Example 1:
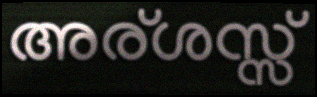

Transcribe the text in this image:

അര്ശസ്സ്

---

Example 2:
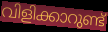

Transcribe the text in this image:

വിളിക്കാറുണ്ട്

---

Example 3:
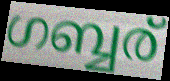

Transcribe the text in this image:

ഗബ്ബര്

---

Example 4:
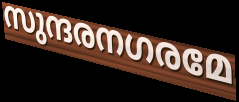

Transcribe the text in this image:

സുന്ദരനഗരമേ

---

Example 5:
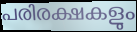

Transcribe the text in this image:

പരിരക്ഷകളും